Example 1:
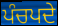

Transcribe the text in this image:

ਪੰਚਪਦੇ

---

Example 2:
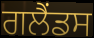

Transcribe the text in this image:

ਗਲੈਂਡਸ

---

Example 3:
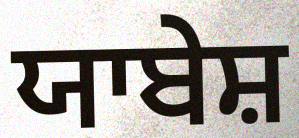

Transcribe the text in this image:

ਯਾਬੇਸ਼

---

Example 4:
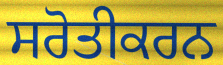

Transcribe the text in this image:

ਸਰੋਤੀਕਰਨ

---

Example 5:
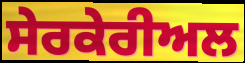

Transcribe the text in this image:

ਸੇਰਕੇਰੀਅਲ